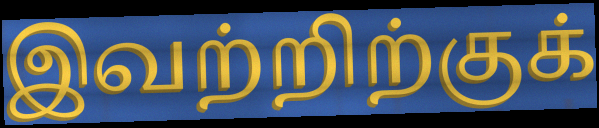
இவற்றிற்குக்